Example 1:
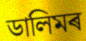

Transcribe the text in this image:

ডালিমৰ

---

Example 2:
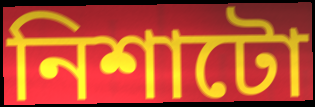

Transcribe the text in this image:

নিশাটো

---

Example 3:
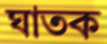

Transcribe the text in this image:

ঘাতক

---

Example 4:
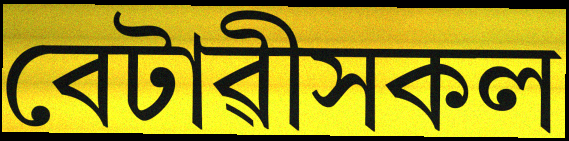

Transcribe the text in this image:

বেটাৱীসকল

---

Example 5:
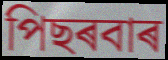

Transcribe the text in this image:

পিছৰবাৰ